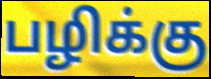
பழிக்கு